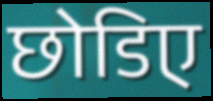
छोडिए